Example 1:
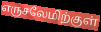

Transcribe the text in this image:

எருசலேமிற்குள்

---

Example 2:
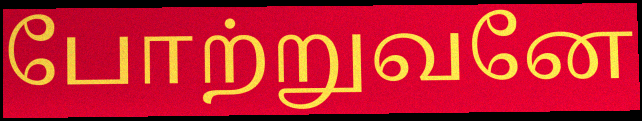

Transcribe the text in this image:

போற்றுவனே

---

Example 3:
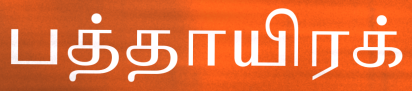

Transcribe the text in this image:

பத்தாயிரக்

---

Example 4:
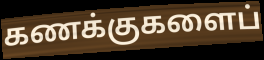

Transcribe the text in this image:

கணக்குகளைப்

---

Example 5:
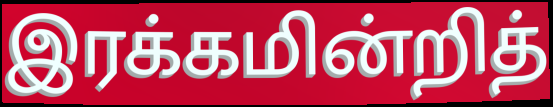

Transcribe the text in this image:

இரக்கமின்றித்